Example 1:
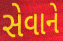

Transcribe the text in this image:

સેવાને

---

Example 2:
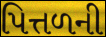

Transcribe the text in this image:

પિત્તળની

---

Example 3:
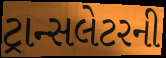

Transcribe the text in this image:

ટ્રાન્સલેટરની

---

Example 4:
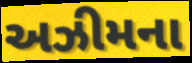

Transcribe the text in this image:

અઝીમના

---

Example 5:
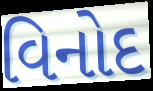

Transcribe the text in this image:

વિનોદ